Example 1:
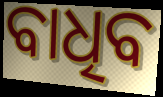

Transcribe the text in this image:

ବାଧିବ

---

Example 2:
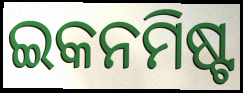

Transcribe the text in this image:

ଇକନମିଷ୍ଟ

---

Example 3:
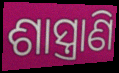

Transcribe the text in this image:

ଶାସ୍ତ୍ରାଣି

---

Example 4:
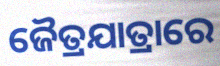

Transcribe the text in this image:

ଜୈତ୍ରଯାତ୍ରାରେ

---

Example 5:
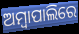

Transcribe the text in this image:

ଅମ୍ବାପାଲିରେ